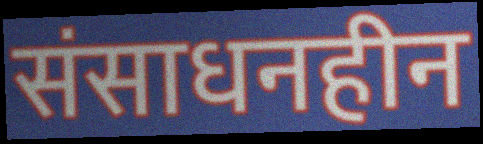
संसाधनहीन